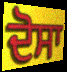
ਦੋਸਾ